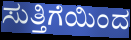
ಸುತ್ತಿಗೆಯಿಂದ